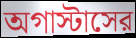
অগাস্টাসের